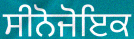
ਸੀਨੋਜੋਇਕ